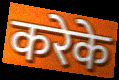
करेके